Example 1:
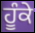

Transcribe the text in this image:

ਹੂੰਕੇ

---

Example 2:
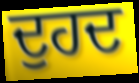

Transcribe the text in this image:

ਦੁਹਦ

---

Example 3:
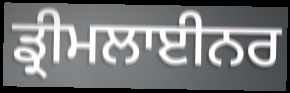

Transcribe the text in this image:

ਡ੍ਰੀਮਲਾਈਨਰ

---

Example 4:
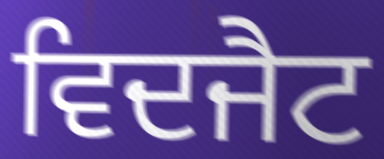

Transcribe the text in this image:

ਵਿਦਜੈਟ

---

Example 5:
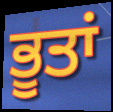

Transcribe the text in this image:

ਭੂਤਾਂ